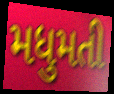
મધુમતી